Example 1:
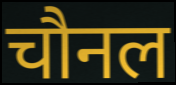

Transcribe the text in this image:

चौनल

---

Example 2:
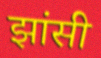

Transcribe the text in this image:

झांसी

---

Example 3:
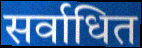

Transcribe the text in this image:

सर्वाधित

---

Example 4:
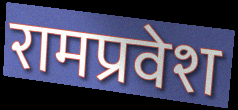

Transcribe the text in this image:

रामप्रवेश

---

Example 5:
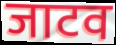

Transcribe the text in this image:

जाटव